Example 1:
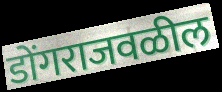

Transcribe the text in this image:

डोंगराजवळील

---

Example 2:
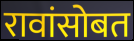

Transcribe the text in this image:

रावांसोबत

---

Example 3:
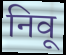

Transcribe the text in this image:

निवू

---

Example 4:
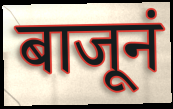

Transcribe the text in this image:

बाजूनं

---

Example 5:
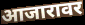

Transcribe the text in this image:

आजारावर